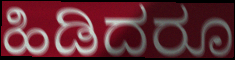
ಹಿಡಿದರೂ